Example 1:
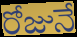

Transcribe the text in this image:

రోజునే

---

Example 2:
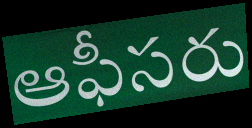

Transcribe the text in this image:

ఆఫీసరు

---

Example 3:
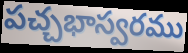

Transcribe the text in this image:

పచ్చభాస్వరము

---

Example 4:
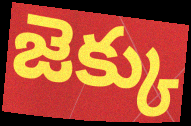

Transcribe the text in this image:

జెక్కు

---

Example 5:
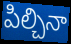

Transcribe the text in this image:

పిల్చినా